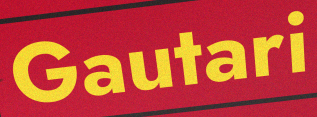
Gautari